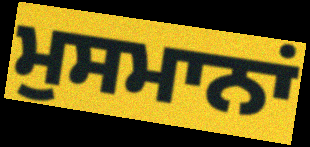
ਮੁਸਮਾਨਾਂ